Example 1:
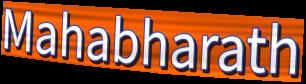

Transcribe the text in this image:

Mahabharath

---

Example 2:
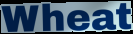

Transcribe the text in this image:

Wheat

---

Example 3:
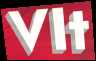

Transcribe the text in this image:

VIt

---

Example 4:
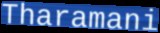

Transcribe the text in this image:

Tharamani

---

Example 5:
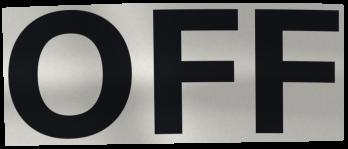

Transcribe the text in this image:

OFF